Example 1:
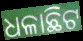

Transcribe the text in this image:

ଧଳାଛିଟ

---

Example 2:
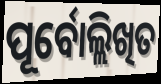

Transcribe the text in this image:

ପୂର୍ବୋଲ୍ଲିଖିତ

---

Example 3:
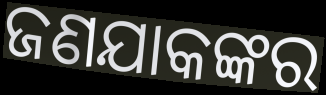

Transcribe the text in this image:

ଜଣଯାକଙ୍କର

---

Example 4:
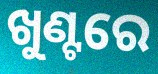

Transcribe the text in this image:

ଖୁଣ୍ଟରେ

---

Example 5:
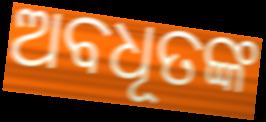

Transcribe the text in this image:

ଅବଧୂତଙ୍କ